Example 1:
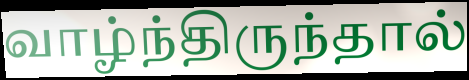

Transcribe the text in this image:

வாழ்ந்திருந்தால்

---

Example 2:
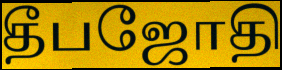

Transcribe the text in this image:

தீபஜோதி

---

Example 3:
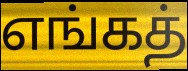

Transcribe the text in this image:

எங்கத்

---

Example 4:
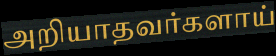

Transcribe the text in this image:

அறியாதவர்களாய்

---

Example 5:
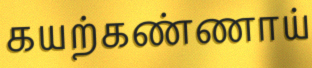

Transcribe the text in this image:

கயற்கண்ணாய்